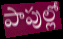
పాపుల్లో